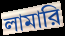
লামারি